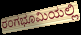
ರಂಗಭೂಮಿಯಲ್ಲಿ